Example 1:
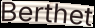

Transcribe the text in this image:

Berthet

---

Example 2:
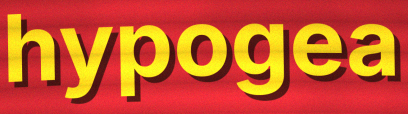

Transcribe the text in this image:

hypogea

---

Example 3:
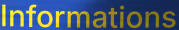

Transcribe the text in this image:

Informations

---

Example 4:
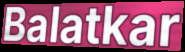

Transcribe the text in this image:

Balatkar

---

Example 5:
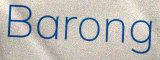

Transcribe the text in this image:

Barong